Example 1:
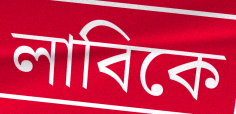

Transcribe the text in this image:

লাবিকে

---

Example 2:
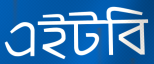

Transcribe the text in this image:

এইটবি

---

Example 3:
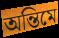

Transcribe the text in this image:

অন্তিমে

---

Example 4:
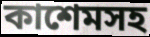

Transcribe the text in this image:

কাশেমসহ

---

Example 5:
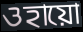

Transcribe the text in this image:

ওহায়ো